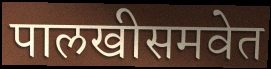
पालखीसमवेत